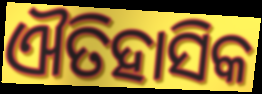
ଐତିହାସିକ